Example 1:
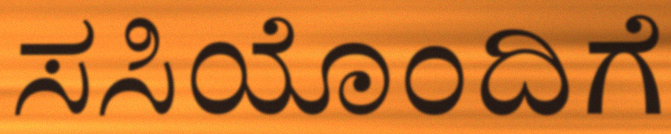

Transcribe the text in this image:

ಸಸಿಯೊಂದಿಗೆ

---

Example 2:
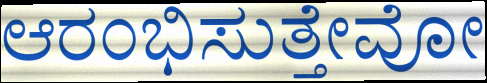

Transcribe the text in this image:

ಆರಂಭಿಸುತ್ತೇವೋ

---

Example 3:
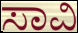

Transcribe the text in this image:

ಸಾವಿ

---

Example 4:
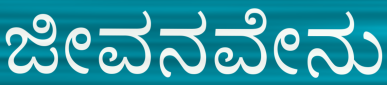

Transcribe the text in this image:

ಜೀವನವೇನು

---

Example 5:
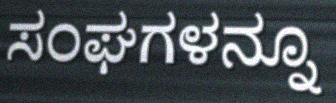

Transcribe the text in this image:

ಸಂಘಗಳನ್ನೂ